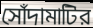
সোঁদামাটির